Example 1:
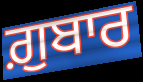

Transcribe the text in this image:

ਗ਼ੁਬਾਰ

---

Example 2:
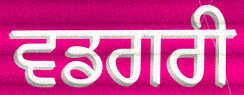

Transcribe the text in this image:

ਵਡਗਰੀ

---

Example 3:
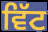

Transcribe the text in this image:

ਵਿੱਟ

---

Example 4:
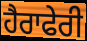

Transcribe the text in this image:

ਹੈਰਾਫੇਰੀ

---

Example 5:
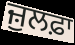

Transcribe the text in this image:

ਜ਼ੁਲਫ਼ਾ